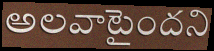
అలవాటైందని